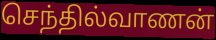
செந்தில்வாணன்